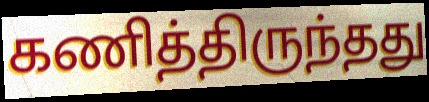
கணித்திருந்தது